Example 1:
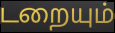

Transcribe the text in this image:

டறையும்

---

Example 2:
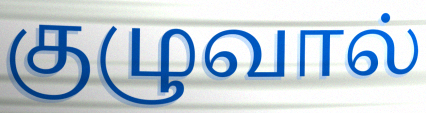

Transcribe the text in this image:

குழுவால்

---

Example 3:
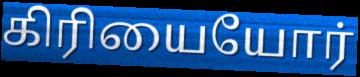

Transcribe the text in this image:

கிரியையோர்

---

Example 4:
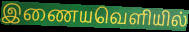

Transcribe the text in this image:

இணையவெளியில்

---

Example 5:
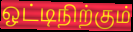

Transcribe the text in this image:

ஒட்டிநிற்கும்